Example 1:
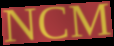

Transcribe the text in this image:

NCM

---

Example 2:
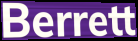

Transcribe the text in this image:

Berrett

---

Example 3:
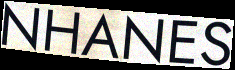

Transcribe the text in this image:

NHANES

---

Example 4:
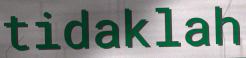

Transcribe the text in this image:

tidaklah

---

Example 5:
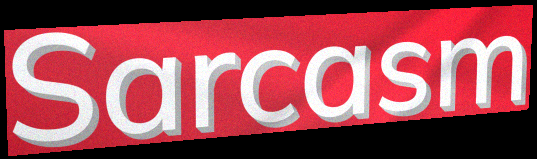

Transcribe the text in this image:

Sarcasm